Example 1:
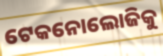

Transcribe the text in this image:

ଟେକନୋଲୋଜିକୁ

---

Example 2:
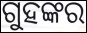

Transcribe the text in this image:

ଗୁହଙ୍କର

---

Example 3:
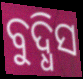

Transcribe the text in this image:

ବୁଦ୍ଧିସ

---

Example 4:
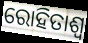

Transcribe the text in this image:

ରୋହିତାଶ୍ୱ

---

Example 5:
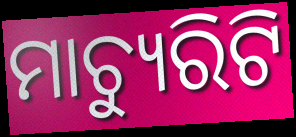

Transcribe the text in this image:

ମାଚ୍ୟୁରିଟି